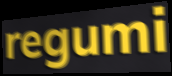
regumi